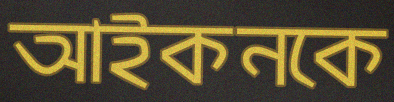
আইকনকে